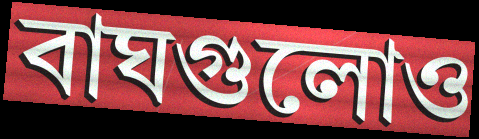
বাঘগুলোও